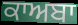
ਕਾਅਬਾ